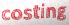
costing